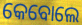
କେବୋଲେ